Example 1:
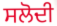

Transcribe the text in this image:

ਸਲੋਦੀ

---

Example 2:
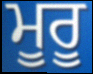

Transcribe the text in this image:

ਮੂਰੂ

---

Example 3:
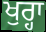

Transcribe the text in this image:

ਖੁਰ੍ਹਾ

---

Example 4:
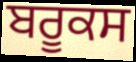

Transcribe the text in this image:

ਬਰੂਕਸ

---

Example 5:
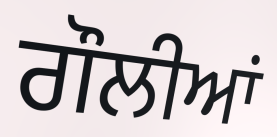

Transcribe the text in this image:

ਗੌਲੀਆਂ